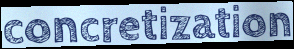
concretization